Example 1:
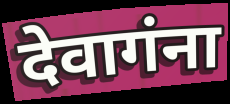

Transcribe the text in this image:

देवागंना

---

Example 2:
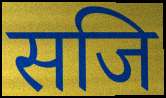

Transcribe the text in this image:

सजि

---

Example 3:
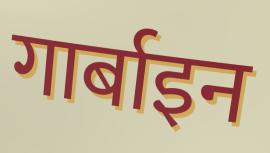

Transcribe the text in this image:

गार्बाइन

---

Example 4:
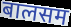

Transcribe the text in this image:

बालसम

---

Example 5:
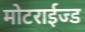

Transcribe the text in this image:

मोटराईज्ड